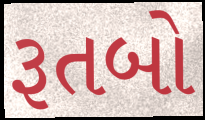
રૂતબો